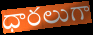
ధారలుగా